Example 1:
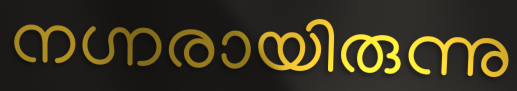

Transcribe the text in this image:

നഗ്നരായിരുന്നു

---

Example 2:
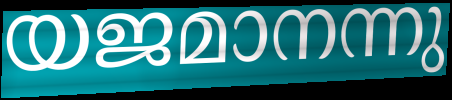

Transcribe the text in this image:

യജമാനന്നു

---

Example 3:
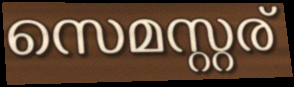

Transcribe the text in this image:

സെമസ്റ്റര്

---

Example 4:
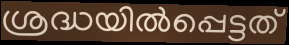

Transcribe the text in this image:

ശ്രദ്ധയിൽപ്പെട്ടത്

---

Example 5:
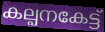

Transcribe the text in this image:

കല്പനകേട്ട്